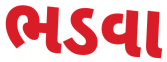
ભડવા